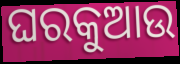
ଘରକୁଆଉ